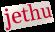
jethu